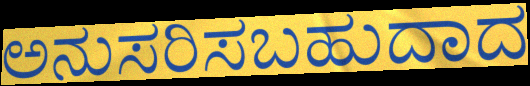
ಅನುಸರಿಸಬಹುದಾದ